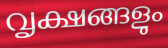
വൃക്ഷങ്ങളും